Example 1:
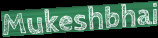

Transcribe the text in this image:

Mukeshbhai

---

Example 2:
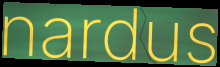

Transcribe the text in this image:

nardus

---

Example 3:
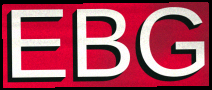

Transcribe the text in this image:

EBG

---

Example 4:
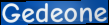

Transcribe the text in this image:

Gedeone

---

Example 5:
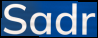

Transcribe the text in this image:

Sadr